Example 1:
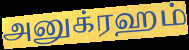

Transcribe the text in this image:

அனுக்ரஹம்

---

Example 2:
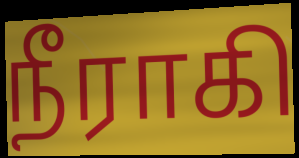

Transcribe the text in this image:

நீராகி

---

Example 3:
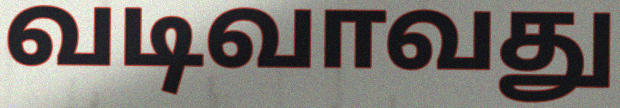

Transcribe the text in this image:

வடிவாவது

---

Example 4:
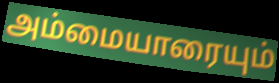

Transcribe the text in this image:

அம்மையாரையும்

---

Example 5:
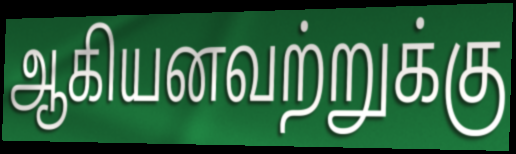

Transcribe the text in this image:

ஆகியனவற்றுக்கு